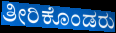
ತೀರಿಕೊಂಡರು